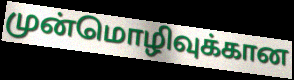
முன்மொழிவுக்கான